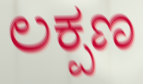
ಲಕ್ಪಣ